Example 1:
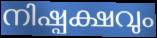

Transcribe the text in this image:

നിഷ്പക്ഷവും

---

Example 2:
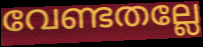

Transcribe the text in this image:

വേണ്ടതല്ലേ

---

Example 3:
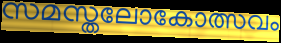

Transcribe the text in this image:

സമസ്തലോകോത്സവം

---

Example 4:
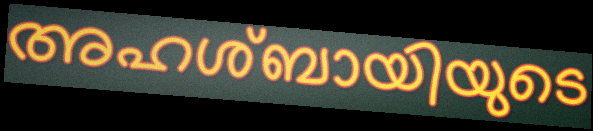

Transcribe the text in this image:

അഹശ്ബായിയുടെ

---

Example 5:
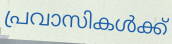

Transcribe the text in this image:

പ്രവാസികൾക്ക്